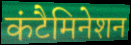
कंटैमिनेशन